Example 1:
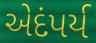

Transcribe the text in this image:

એદંપર્ય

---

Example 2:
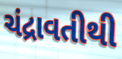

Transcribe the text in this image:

ચંદ્રાવતીથી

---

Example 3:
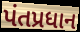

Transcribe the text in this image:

પંતપ્રધાન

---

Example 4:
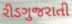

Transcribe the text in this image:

રીડગુજરાતી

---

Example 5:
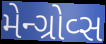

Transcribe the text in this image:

મેન્ગ્રોવ્સ